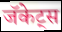
जॅकेट्स